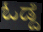
ಓಡ್ದೆ